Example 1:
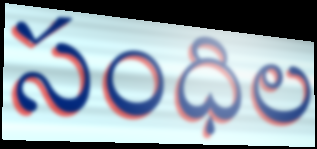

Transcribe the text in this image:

సంధిల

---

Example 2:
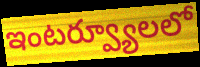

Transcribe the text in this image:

ఇంటర్వ్యూలలో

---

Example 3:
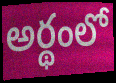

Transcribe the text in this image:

అర్థంలో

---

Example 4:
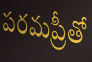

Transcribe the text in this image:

పరమప్రీతో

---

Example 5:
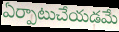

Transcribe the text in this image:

ఏర్పాటుచేయడమే